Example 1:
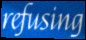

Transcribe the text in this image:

refusing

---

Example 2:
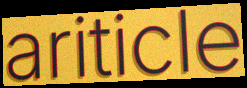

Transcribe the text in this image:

ariticle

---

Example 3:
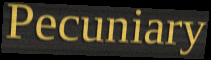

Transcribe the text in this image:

Pecuniary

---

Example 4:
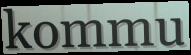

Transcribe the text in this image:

kommu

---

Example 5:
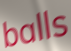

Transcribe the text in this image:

balls